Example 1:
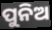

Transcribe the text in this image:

ପୁନିଅ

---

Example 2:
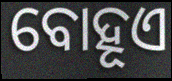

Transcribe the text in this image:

ବୋହୂଏ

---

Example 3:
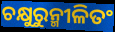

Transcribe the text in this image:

ଚକ୍ଷୁରୁନ୍ମୀଳିତଂ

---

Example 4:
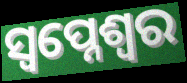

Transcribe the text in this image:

ସ୍ଵପ୍ନେଶ୍ଵର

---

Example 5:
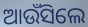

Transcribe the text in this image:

ଆଉଁସିଲେ